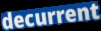
decurrent